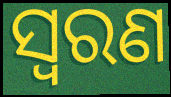
ସ୍ୱରଣ